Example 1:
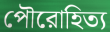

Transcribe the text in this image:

পৌরোহিত্য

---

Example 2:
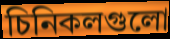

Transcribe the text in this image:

চিনিকলগুলো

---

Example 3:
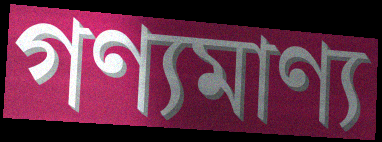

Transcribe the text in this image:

গণ্যমাণ্য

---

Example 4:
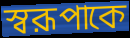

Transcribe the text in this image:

স্বরূপাকে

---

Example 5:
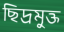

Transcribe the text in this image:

ছিদ্রমুক্ত